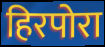
हिरपोरा